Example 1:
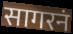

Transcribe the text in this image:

सागरनं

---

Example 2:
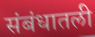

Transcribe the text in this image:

संबंधातली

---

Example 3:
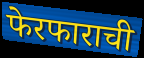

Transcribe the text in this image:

फेरफाराची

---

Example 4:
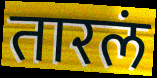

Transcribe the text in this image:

तारलं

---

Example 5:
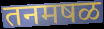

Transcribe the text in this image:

तनमषळ